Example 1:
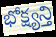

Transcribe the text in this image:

భోక్ష్యన్తి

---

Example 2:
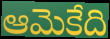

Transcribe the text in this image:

ఆమెకేది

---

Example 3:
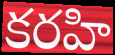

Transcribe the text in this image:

కరహి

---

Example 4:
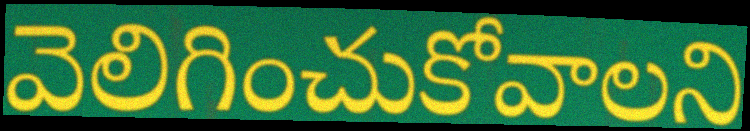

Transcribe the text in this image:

వెలిగించుకోవాలని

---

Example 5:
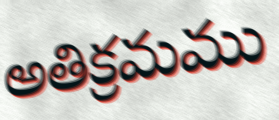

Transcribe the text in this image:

అతిక్రమము